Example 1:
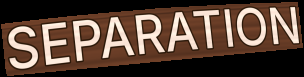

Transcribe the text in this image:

SEPARATION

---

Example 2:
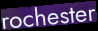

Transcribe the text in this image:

rochester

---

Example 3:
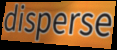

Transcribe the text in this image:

disperse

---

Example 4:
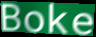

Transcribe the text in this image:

Boke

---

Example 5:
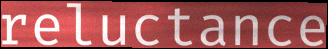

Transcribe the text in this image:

reluctance